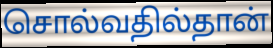
சொல்வதில்தான்